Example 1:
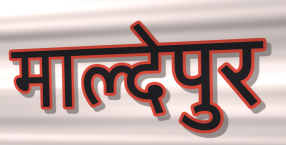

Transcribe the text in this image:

माल्देपुर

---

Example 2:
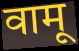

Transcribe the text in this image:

वामू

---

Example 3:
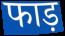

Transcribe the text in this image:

फाड़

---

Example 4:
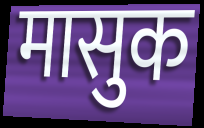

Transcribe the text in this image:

मासुक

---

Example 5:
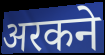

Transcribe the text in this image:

अरकने